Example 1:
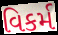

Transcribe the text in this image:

વિકર્મ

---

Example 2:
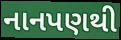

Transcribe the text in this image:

નાનપણથી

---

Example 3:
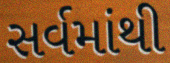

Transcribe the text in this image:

સર્વમાંથી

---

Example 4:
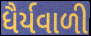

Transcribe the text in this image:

ધૈર્યવાળી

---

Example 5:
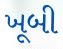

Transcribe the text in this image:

ખૂબી